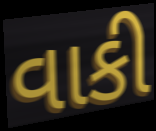
વાકી